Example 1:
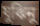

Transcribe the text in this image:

যুঝিনু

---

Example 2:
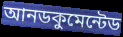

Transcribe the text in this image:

আনডকুমেন্টেড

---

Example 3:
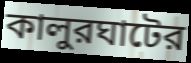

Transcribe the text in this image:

কালুরঘাটের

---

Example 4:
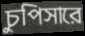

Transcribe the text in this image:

চুপিসারে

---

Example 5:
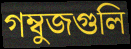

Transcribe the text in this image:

গম্বুজগুলি